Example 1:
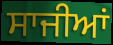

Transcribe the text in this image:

ਸਾਜੀਆਂ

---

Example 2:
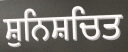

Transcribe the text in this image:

ਸ਼ੁਨਿਸ਼ਚਿਤ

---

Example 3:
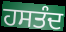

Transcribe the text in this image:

ਹਸਤੰਦ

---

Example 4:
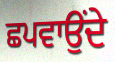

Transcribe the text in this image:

ਛਪਵਾਉਂਦੇ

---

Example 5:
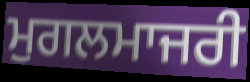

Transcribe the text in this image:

ਮੁਗਲਮਾਜਰੀ